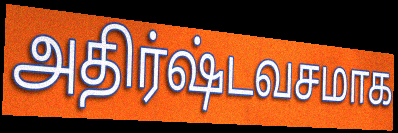
அதிர்ஷ்டவசமாக